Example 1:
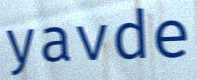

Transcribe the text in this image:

yavde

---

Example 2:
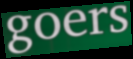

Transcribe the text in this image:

goers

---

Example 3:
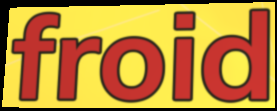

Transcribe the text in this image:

froid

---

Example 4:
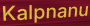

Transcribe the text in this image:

Kalpnanu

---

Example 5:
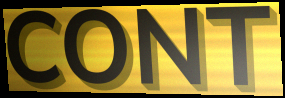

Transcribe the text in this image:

CONT